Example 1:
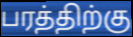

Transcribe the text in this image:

பரத்திற்கு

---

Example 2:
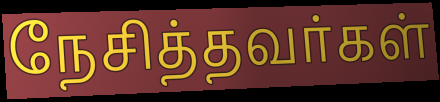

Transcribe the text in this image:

நேசித்தவர்கள்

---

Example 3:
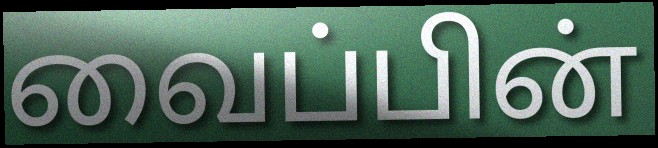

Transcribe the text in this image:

வைப்பின்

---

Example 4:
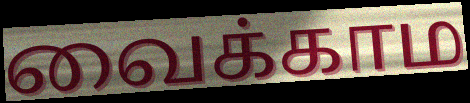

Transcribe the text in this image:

வைக்காம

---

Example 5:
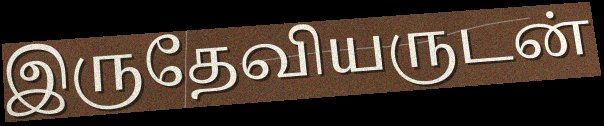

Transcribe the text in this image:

இருதேவியருடன்